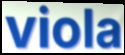
viola